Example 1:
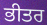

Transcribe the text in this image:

ਭੀਤਰ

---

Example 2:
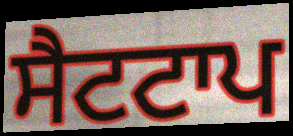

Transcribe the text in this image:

ਸੈਟਟਾਪ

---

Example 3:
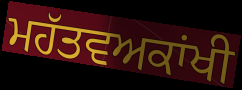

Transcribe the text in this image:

ਮਹੱਤਵਅਕਾਂਖੀ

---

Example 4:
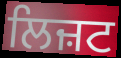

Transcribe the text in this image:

ਲਿਜ਼ਟ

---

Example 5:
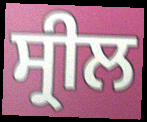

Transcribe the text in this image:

ਸ੍ਰੀਲ